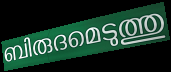
ബിരുദമെടുത്തു